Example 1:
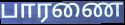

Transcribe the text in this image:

பாரணை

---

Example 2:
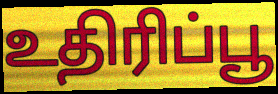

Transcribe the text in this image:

உதிரிப்பூ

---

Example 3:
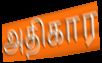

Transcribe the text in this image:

அதிகார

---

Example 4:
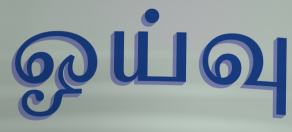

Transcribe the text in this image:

ஓய்வு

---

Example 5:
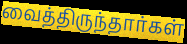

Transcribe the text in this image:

வைத்திருந்தார்கள்